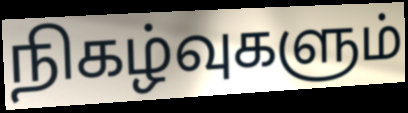
நிகழ்வுகளும்